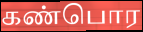
கண்பொர